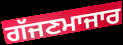
ਗੱਜਣਮਾਜਾਰ